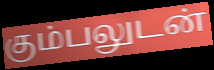
கும்பலுடன்